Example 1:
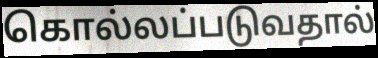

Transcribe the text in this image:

கொல்லப்படுவதால்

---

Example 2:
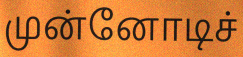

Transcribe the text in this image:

முன்னோடிச்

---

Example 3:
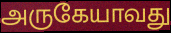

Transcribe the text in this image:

அருகேயாவது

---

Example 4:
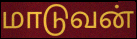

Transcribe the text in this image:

மாடுவன்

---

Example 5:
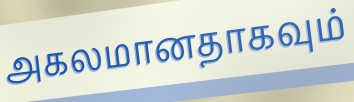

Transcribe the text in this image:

அகலமானதாகவும்